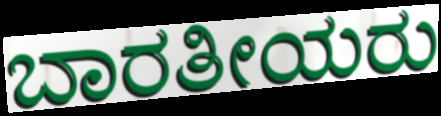
ಬಾರತೀಯರು